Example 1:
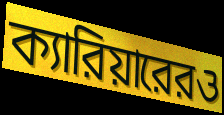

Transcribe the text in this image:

ক্যারিয়ারেরও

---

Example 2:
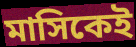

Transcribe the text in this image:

মাসিকেই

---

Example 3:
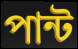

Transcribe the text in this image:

পান্ট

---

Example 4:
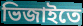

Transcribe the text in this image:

ভিজাইতে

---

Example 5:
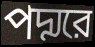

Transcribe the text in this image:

পদ্মরে